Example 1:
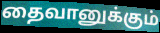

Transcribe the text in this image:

தைவானுக்கும்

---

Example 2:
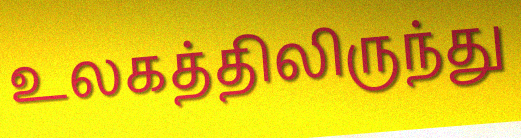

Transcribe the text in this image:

உலகத்திலிருந்து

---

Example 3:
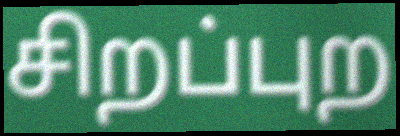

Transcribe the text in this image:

சிறப்புற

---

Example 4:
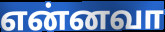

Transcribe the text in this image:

என்னவா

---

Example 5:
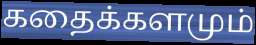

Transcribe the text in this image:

கதைக்களமும்